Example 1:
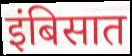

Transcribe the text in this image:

इंबिसात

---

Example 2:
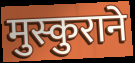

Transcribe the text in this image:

मुस्‍कुराने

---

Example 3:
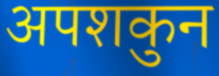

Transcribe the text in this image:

अपशकुन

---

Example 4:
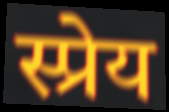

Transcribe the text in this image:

स्प्रेय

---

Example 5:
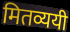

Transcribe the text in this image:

मितव्ययी